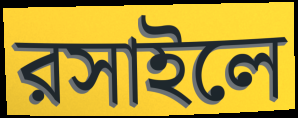
রসাইলে